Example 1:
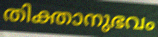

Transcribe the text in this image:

തിക്താനുഭവം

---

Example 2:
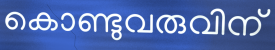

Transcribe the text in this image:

കൊണ്ടുവരുവിന്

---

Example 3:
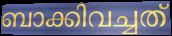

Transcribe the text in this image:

ബാക്കിവച്ചത്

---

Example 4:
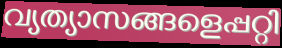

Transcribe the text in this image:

വ്യത്യാസങ്ങളെപ്പറ്റി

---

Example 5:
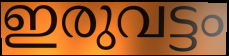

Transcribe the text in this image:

ഇരുവട്ടം